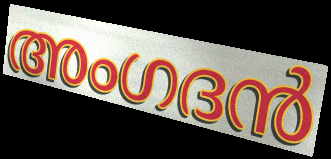
അംഗദൻ